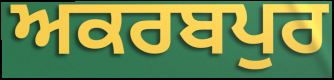
ਅਕਰਬਪੁਰ